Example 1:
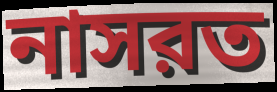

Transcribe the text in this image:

নাসরত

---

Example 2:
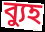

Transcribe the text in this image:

ব্যুহ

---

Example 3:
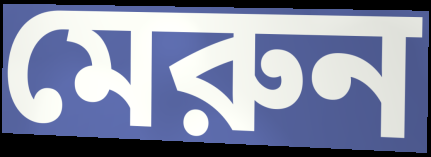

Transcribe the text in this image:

মেরুন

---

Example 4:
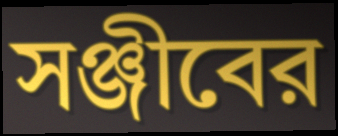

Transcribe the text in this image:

সঞ্জীবের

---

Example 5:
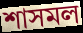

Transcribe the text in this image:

শাসমল